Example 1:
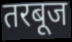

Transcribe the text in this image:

तरबूज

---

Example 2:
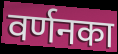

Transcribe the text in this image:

वर्णनका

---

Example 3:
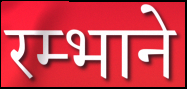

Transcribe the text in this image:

रम्भाने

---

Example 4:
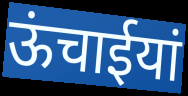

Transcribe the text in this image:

ऊंचाईयां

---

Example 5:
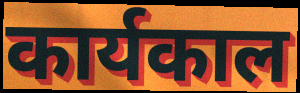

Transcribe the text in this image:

कार्यकाल